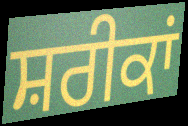
ਸ਼ਰੀਕਾਂ